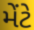
મેંટે